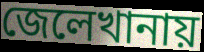
জেলেখানায়